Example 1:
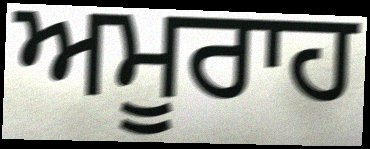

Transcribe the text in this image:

ਅਮੂਰਾਹ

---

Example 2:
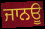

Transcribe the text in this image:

ਜਾਨਊ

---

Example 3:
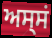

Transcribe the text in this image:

ਅਸ੍ਸਂ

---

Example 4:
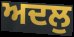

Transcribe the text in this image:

ਅਦਲੁ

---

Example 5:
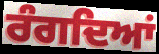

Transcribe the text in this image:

ਰੰਗਦਿਆਂ